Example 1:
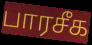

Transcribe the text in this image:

பாரசீக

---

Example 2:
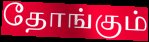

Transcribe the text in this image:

தோங்கும்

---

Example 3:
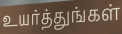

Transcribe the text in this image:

உயர்த்துங்கள்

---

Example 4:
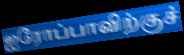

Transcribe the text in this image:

ஐரோப்பாவிற்குச்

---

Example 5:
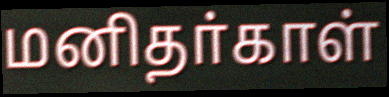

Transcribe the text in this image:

மனிதர்காள்